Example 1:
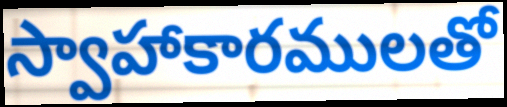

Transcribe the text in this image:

స్వాహాకారములతో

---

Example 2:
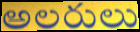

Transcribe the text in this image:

అలరులు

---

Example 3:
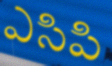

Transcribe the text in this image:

ఎసిపి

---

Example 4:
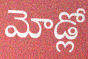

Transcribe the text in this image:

మోడ్లో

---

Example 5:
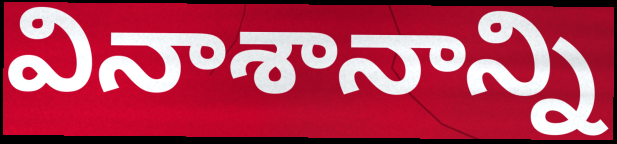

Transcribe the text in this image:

వినాశానాన్ని